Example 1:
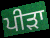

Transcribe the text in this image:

ਪੀੜਾ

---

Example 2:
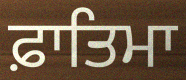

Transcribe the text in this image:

ਫ਼ਾਤਿਮਾ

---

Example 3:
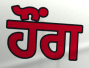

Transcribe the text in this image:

ਹੌਂਗ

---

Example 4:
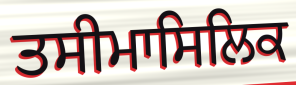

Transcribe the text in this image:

ਤਸੀਮਾਸਿਲਿਕ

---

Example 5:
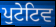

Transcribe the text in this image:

ਪੁਟੇਟਿਵ